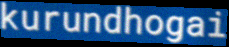
kurundhogai